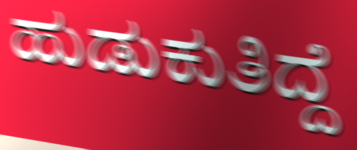
ಹುಡುಕುತಿದ್ದೆ